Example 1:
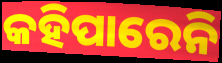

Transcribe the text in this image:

କହିପାରେନି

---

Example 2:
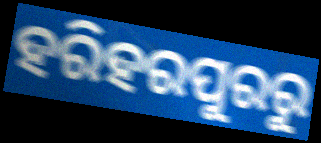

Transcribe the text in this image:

ହରିହରପୁରରୁ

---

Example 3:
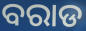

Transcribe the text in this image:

ବରାଡ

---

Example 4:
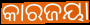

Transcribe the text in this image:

କାରଜୟା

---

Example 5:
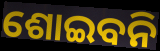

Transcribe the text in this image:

ଶୋଇବନି